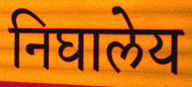
निघालेय